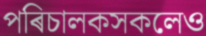
পৰিচালকসকলেও